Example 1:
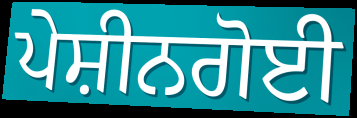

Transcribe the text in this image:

ਪੇਸ਼ੀਨਗੋਈ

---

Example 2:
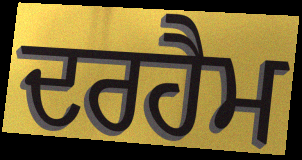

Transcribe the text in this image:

ਦਰਹੈਮ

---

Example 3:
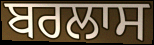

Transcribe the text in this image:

ਬਰਲਾਸ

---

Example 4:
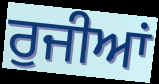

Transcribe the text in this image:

ਰੁਜੀਆਂ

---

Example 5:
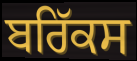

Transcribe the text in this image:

ਬਰਿੱਕਸ